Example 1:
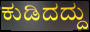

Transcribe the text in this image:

ಕುಡಿದದ್ದು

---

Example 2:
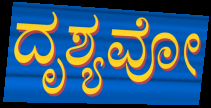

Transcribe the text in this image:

ದೃಶ್ಯವೋ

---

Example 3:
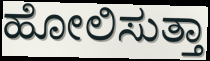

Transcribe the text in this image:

ಹೋಲಿಸುತ್ತಾ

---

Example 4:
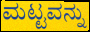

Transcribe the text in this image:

ಮಟ್ಟವನ್ನು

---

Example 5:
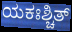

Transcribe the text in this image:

ಯಕಃಶ್ಚಿತ್